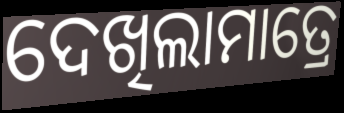
ଦେଖିଲାମାତ୍ରେ